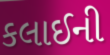
કલાઈની